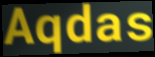
Aqdas